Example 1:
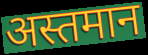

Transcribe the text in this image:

अस्तमान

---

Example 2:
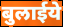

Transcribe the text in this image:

बुलाईये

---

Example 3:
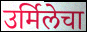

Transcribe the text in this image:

उर्मिलेचा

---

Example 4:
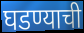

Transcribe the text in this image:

घडण्याची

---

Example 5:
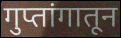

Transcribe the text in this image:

गुप्तांगातून